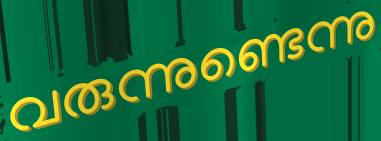
വരുന്നുണ്ടെന്നു